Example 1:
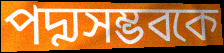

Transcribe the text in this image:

পদ্মসম্ভবকে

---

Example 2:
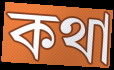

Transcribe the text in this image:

কথা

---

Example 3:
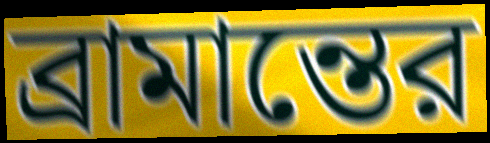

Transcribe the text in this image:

ব্রামান্তের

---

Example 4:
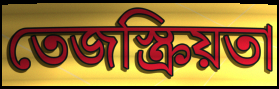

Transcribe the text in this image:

তেজস্ক্রিয়তা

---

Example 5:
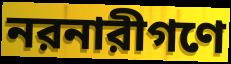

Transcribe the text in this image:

নরনারীগণে